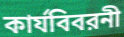
কার্যবিবরনী